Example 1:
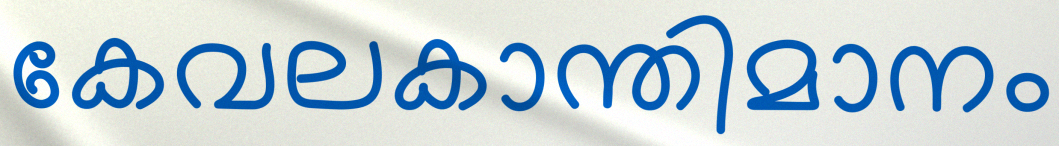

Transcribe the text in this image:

കേവലകാന്തിമാനം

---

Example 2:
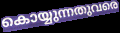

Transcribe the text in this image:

കൊയ്യുന്നതുവരെ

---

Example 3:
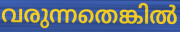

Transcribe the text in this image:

വരുന്നതെങ്കിൽ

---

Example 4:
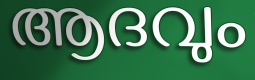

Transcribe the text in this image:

ആദവും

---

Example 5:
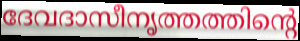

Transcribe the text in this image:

ദേവദാസീനൃത്തത്തിന്റെ